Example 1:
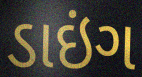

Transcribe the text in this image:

ડાઇંગ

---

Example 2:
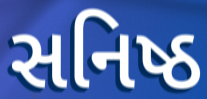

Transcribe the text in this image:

સનિષ્ઠ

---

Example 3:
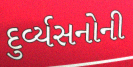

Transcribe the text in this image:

દુર્વ્યસનોની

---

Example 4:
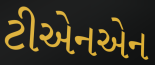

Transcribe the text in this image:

ટીએનએન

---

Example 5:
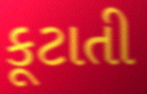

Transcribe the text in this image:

કૂટાતી